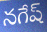
నగేష్